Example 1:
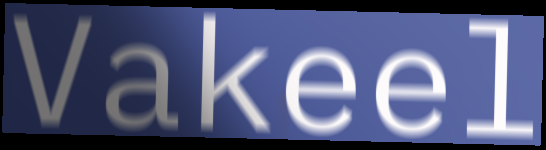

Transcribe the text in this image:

Vakeel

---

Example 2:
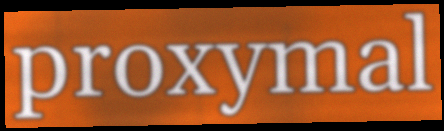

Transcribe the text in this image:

proxymal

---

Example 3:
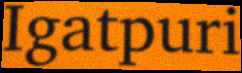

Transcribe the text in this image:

Igatpuri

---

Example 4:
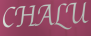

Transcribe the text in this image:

CHALU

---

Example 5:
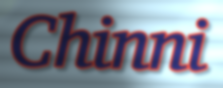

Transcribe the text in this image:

Chinni